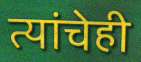
त्यांचेही